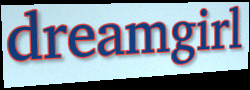
dreamgirl